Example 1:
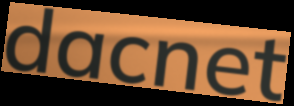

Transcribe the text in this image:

dacnet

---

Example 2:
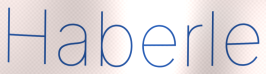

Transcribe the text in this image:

Haberle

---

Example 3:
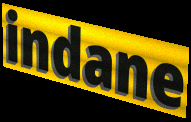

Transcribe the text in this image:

indane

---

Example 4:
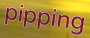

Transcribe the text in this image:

pipping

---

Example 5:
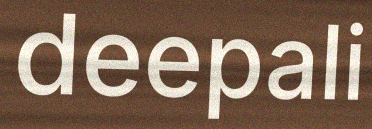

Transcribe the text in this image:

deepali